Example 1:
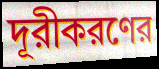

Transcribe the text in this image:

দূরীকরণের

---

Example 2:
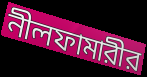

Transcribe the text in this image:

নীলফামারীর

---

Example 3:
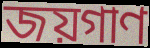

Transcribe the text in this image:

জয়গাণ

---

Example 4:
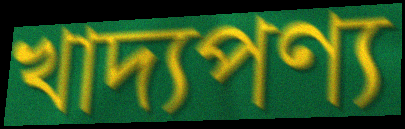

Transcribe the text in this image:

খাদ্যপণ্য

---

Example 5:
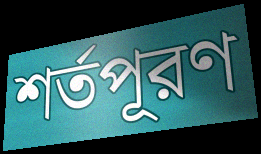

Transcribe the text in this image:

শর্তপূরণ